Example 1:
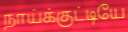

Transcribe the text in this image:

நாய்க்குட்டியே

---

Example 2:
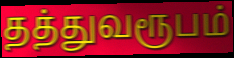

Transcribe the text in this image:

தத்துவரூபம்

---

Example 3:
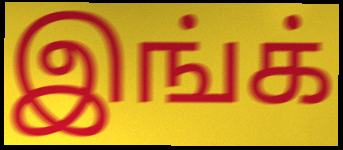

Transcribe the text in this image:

இங்க்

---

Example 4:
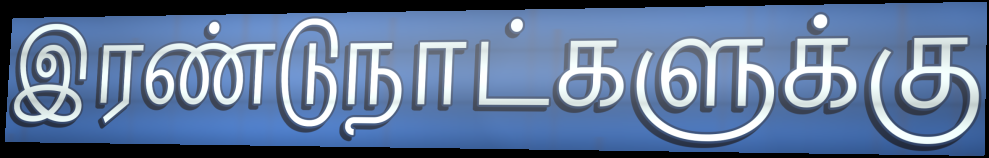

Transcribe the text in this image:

இரண்டுநாட்களுக்கு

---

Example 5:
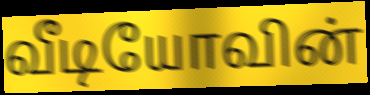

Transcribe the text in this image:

வீடியோவின்